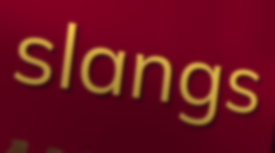
slangs